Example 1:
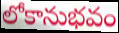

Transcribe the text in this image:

లోకానుభవం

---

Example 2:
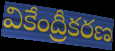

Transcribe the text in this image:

వికేంద్రీకరణ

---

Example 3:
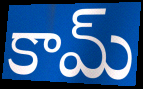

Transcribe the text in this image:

కామ్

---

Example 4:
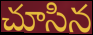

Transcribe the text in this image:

చూసిన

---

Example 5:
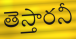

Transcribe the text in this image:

తెస్తారనీ